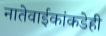
नातेवाईकांकडेही